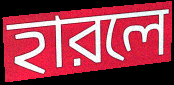
হারলে